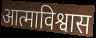
आत्माविश्वास